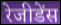
रेजीडेंस